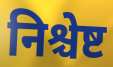
निश्चेष्ट